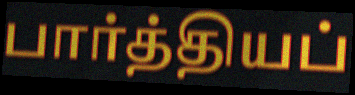
பார்த்தியப்